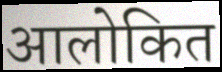
आलोकित